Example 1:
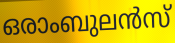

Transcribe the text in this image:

ഒരാംബുലൻസ്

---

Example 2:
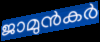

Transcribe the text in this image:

ജാമുൻകർ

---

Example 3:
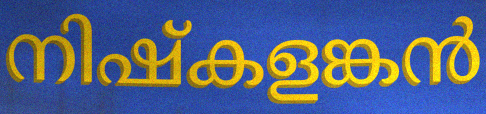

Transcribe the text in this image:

നിഷ്കളങ്കൻ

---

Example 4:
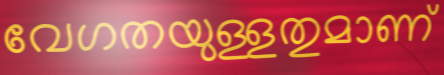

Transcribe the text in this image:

വേഗതയുള്ളതുമാണ്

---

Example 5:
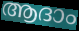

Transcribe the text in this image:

ആദാം